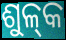
ଶୁଳ୍‌କ